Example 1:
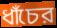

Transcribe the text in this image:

ধাঁচের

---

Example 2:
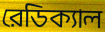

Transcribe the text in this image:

রেডিক্যাল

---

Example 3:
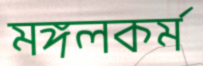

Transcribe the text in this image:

মঙ্গলকর্ম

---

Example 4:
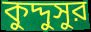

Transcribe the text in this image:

কুদ্দুসুর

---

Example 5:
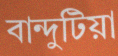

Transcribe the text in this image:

বান্দুটিয়া